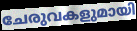
ചേരുവകളുമായി